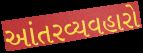
આંતરવ્યવહારો